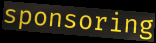
sponsoring